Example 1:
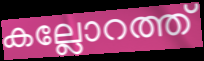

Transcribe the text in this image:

കല്ലോറത്ത്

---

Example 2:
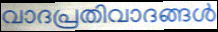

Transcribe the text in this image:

വാദപ്രതിവാദങ്ങൾ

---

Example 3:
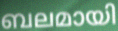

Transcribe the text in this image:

ബലമായി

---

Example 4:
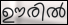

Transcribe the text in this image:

ഊരിൽ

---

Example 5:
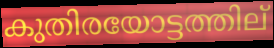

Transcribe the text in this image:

കുതിരയോട്ടത്തില്